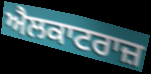
ਐਲਕਾਟਰਾਜ਼